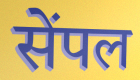
सेंपल